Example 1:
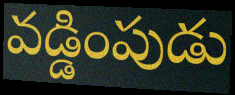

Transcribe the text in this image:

వడ్డింపుడు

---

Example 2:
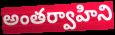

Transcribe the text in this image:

అంతర్వాహిని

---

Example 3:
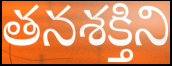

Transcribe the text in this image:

తనశక్తిని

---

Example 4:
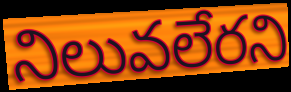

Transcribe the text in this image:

నిలువలేరని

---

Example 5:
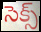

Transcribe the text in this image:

సెక్స్